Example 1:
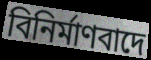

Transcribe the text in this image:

বিনিৰ্মাণবাদে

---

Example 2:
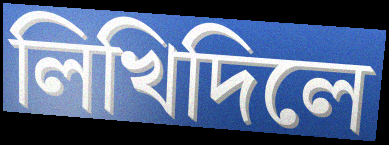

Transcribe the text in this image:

লিখিদিলে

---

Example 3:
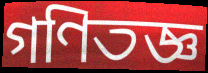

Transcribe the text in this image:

গণিতজ্ঞ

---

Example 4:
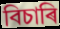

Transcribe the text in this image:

বিচাৰি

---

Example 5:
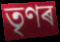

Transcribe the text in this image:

তৃণৰ